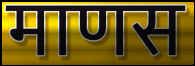
माणस